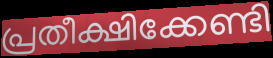
പ്രതീക്ഷിക്കേണ്ടി